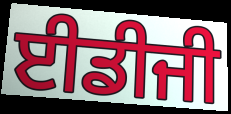
ਈਡੀਜੀ